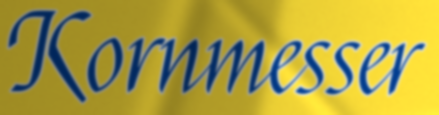
Kornmesser